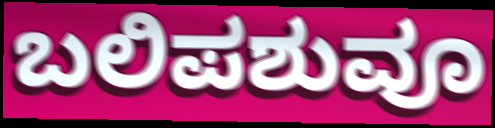
ಬಲಿಪಶುವೂ